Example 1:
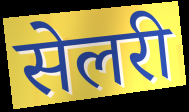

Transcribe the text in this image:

सेलरी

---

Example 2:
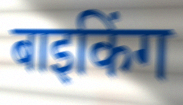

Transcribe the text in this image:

बाइकिंग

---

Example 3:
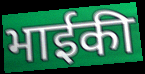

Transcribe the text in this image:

भाईकी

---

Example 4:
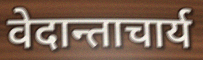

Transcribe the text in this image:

वेदान्ताचार्य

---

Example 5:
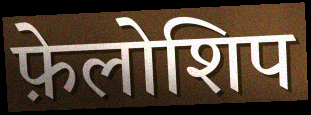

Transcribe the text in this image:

फ़ेलोशिप